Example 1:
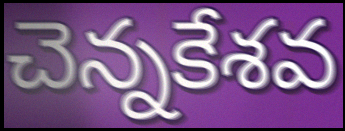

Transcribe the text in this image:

చెన్నకేశవ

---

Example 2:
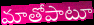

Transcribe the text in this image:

మాతోపాటూ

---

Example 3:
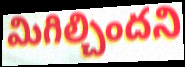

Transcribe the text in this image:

మిగిల్చిందని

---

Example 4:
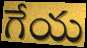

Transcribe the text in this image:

గేయ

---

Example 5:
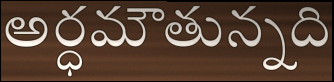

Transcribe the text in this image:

అర్ధమౌతున్నది